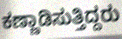
ಕಣ್ಣಾಡಿಸುತ್ತಿದ್ದರು